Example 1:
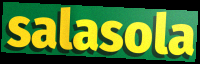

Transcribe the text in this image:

salasola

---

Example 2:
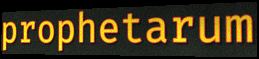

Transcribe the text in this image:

prophetarum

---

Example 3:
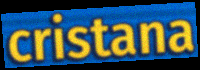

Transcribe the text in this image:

cristana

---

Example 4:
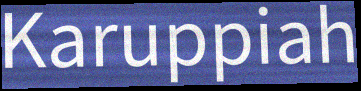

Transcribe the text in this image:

Karuppiah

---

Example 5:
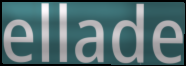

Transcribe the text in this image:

ellade